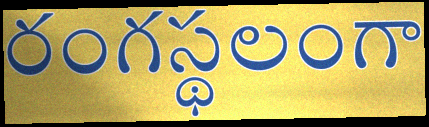
రంగస్థలంగా